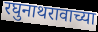
रघुनाथरावाच्या